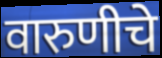
वारुणीचे